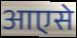
आएसे